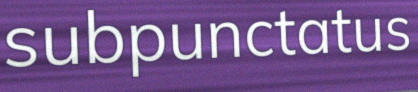
subpunctatus